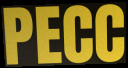
PECC